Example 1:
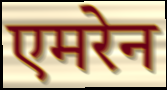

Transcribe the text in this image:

एमरेन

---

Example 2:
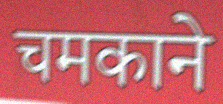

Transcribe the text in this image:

चमकाने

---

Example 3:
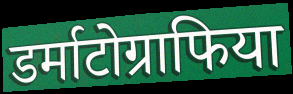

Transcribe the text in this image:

डर्माटोग्राफिया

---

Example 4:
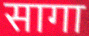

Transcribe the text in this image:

सागा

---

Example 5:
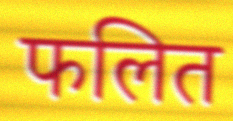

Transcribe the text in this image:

फलित